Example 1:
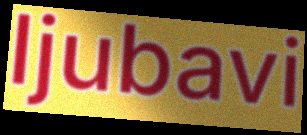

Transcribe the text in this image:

ljubavi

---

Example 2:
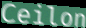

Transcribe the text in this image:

Ceilon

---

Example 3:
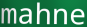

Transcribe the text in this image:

mahne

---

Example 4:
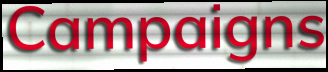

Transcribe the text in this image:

Campaigns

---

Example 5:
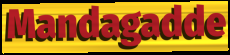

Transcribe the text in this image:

Mandagadde